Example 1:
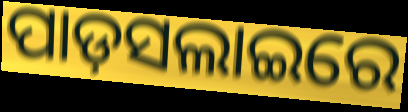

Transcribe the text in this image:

ପାଡ଼ସଲାଇରେ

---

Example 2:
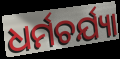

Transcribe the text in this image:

ଧର୍ମଚର୍ଯ୍ୟା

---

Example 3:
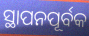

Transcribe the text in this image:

ସ୍ଥାପନପୂର୍ବକ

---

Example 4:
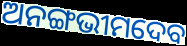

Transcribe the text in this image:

ଅନଙ୍ଗଭୀମଦେବ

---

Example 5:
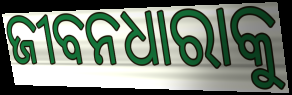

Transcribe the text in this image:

ଜୀବନଧାରାକୁ